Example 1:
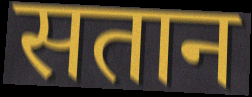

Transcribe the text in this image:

सतान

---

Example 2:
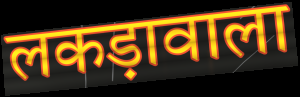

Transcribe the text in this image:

लकड़ावाला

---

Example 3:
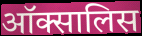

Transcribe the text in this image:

ऑक्सालिस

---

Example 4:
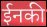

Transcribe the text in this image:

ईनकी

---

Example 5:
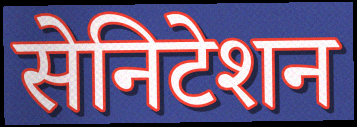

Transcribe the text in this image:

सेनिटेशन